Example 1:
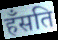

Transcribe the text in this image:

हँसति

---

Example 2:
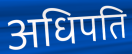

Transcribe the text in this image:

अधिपति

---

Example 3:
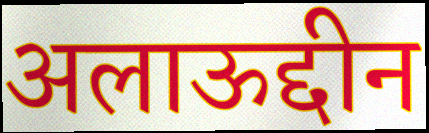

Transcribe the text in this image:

अलाऊद्दीन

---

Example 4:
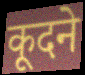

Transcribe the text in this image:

कूदने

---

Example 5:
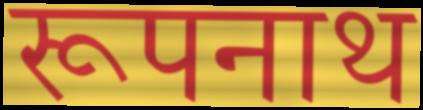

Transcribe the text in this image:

रूपनाथ